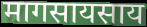
मागसायसाय